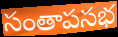
సంతాపసభ